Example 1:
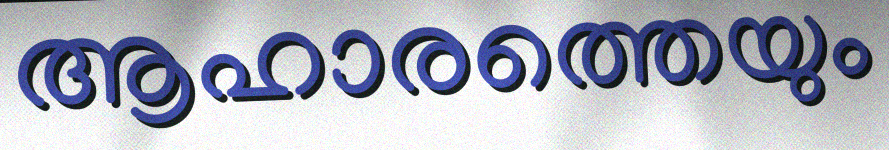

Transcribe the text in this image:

ആഹാരത്തെയും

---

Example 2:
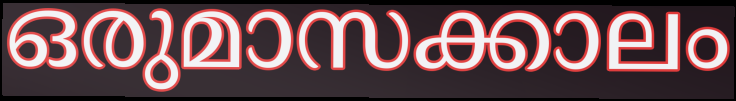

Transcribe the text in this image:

ഒരുമാസക്കാലം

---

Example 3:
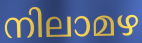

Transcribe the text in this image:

നിലാമഴ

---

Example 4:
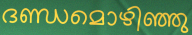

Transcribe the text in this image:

ദണ്ഡമൊഴിഞ്ഞു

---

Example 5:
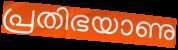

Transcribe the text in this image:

പ്രതിഭയാണു